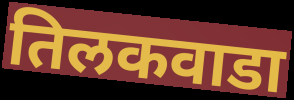
तिलकवाडा